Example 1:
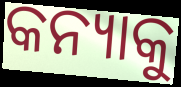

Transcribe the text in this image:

କନ୍ୟାକୁ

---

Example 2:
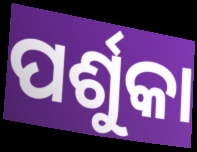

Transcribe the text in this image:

ପର୍ଶୁକା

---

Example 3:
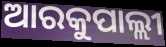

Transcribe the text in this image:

ଆରକୁପାଲ୍ଲୀ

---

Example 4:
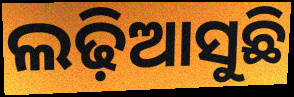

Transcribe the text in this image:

ଲଢ଼ିଆସୁଛି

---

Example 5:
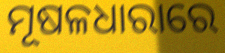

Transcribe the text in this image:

ମୂଷଳଧାରାରେ